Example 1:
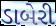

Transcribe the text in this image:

ડાબેરી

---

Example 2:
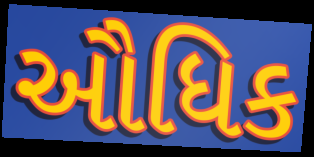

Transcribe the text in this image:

ઔધિક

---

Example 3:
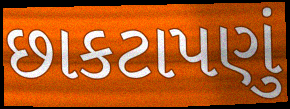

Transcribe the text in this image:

છાકટાપણું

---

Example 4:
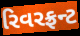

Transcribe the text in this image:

રિવરફ્રન્ટ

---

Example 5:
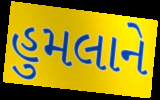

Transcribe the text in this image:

હુમલાને